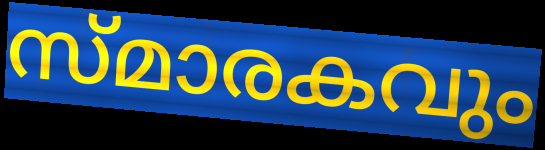
സ്മാരകവും